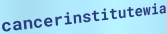
cancerinstitutewia